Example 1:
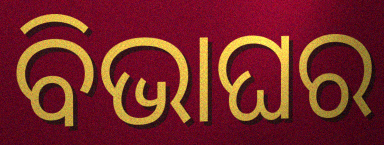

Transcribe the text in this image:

ବିଭାଘର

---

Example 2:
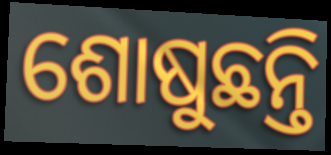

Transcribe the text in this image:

ଶୋଷୁଛନ୍ତି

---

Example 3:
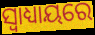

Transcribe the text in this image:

ସ୍ଵାଧ୍ୟାୟରେ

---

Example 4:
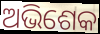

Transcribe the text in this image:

ଅଭିଶେକ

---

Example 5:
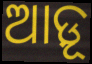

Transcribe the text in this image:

ଆଡ଼ୂ